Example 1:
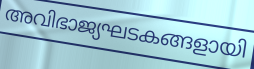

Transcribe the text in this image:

അവിഭാജ്യഘടകങ്ങളായി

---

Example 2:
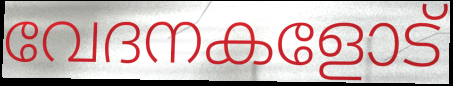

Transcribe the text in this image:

വേദനകളോട്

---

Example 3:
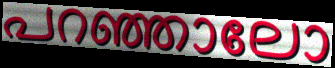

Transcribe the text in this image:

പറഞ്ഞാലോ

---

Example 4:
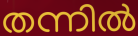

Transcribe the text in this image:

തന്നിൽ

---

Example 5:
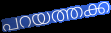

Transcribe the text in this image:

പറയത്തക്ക